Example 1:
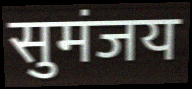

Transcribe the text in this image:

सुमंजय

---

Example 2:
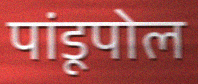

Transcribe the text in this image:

पांडूपोल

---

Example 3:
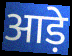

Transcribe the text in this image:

आड़े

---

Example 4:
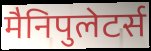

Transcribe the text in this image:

मैनिपुलेटर्स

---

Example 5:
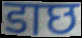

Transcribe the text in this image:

डाछ